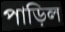
পাড়িল